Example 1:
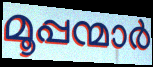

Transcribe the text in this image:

മൂപ്പന്മാർ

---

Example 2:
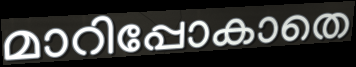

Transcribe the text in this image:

മാറിപ്പോകാതെ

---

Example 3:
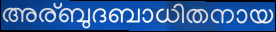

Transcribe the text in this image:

അര്ബുദബാധിതനായ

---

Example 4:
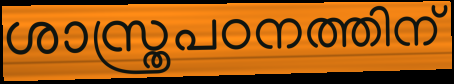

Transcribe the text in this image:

ശാസ്ത്രപഠനത്തിന്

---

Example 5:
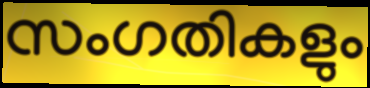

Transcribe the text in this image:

സംഗതികളും